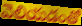
వెలియడంతో